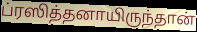
ப்ரஸித்தனாயிருந்தான்